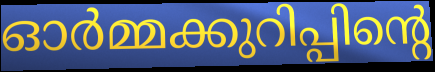
ഓർമ്മക്കുറിപ്പിന്റെ